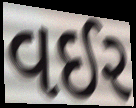
વઈર